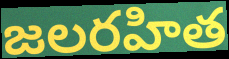
జలరహిత